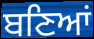
ਬਣਿਆਂ